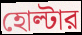
হোল্টার